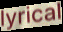
lyrical